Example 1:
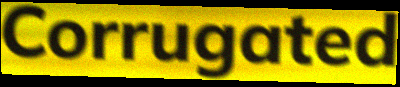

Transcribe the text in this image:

Corrugated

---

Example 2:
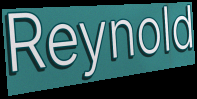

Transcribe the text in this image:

Reynold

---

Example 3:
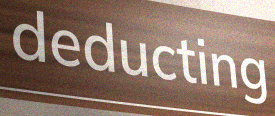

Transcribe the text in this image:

deducting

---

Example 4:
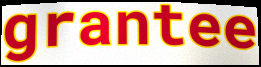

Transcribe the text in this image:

grantee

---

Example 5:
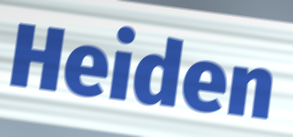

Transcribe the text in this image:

Heiden